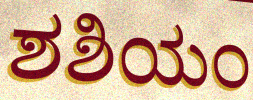
ಶಶಿಯಂ